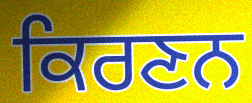
ਕਿਰਣਨ